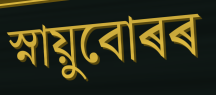
স্নায়ুবোৰৰ